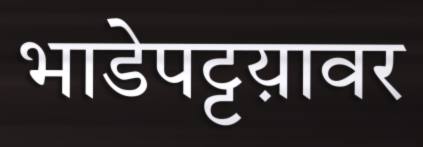
भाडेपट्टय़ावर